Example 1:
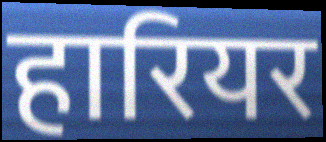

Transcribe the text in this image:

हारियर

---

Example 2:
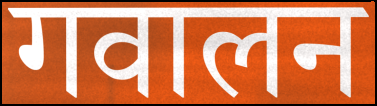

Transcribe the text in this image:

गवालन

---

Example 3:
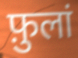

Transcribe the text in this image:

फ़ुलां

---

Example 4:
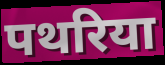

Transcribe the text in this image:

पथरिया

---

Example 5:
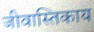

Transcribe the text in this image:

जीवास्तिकाय